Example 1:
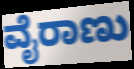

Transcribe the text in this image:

ವೈರಾಣು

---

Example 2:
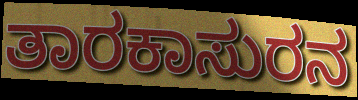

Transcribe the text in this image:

ತಾರಕಾಸುರನ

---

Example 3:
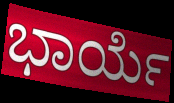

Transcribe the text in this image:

ಭಾರ್ಯೆ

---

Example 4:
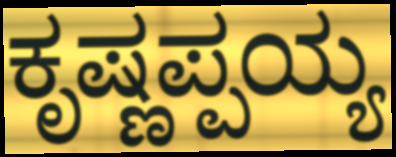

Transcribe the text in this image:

ಕೃಷ್ಣಪ್ಪಯ್ಯ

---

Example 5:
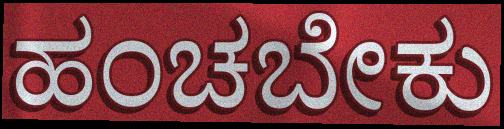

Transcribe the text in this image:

ಹಂಚಬೇಕು